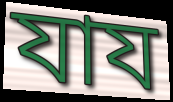
যায